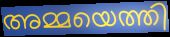
അമ്മയെത്തി